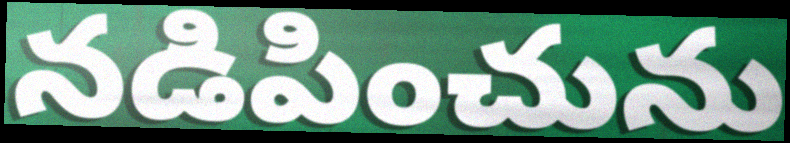
నడిపించును